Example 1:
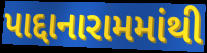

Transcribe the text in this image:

પાદ્દાનારામમાંથી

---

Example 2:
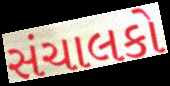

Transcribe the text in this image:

સંચાલકો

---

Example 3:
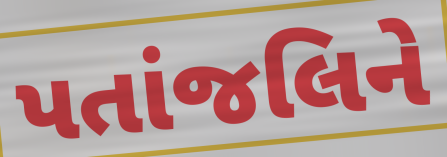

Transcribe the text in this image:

પતાંજલિને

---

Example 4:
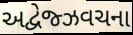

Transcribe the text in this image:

અદ્વેજ્ઝવચના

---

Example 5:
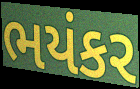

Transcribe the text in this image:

ભયંકર